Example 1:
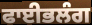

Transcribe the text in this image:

ਫਾਈਭਲੰਗ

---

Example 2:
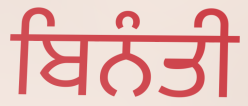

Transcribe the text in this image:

ਬਿਨੰਤੀ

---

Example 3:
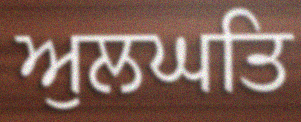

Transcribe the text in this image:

ਅੁਲਘਤਿ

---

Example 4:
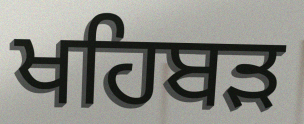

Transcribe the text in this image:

ਖਹਿਬੜ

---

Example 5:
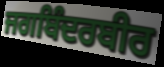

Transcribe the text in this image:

ਜਗਬਿੰਦਰਬੀਰ